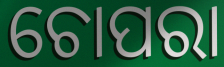
ଚୋପରା